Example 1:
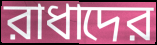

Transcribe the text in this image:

রাধাদের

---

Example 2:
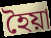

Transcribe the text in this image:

হৈয়া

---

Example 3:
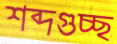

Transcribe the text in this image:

শব্দগুচ্ছ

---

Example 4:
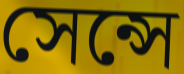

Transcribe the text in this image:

সেন্সে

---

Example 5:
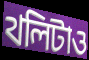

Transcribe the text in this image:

থলিটাও